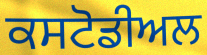
ਕਸਟੋਡੀਅਲ